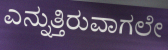
ಎನ್ನುತ್ತಿರುವಾಗಲೇ